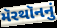
મૅરથૉનનું